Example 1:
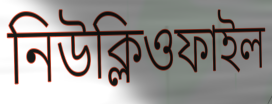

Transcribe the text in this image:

নিউক্লিওফাইল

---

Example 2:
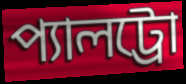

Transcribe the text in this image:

প্যালট্রো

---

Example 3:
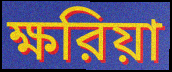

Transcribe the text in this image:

ক্ষরিয়া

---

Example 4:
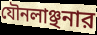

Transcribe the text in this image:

যৌনলাঞ্ছনার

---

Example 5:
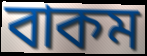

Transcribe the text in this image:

বাকম